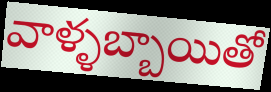
వాళ్ళబ్బాయితో